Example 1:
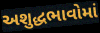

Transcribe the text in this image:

અશુદ્ધભાવોમાં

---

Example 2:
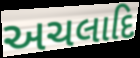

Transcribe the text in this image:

અચલાદિ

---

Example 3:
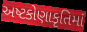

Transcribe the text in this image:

અષ્ટકોણાકૃતિમાં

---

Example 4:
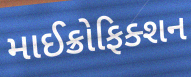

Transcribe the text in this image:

માઈક્રોફિક્શન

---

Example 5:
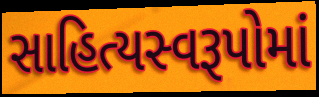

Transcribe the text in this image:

સાહિત્યસ્વરૂપોમાં